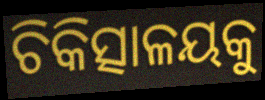
ଚିକିତ୍ସାଳୟକୁ